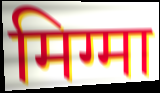
मिग्मा